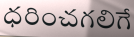
ధరించగలిగే